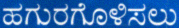
ಹಗುರಗೊಳಿಸಲು